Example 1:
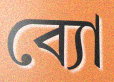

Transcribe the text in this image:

ব্যো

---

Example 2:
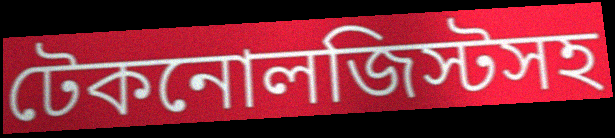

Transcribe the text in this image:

টেকনোলজিস্টসহ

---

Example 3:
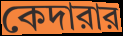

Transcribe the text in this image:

কেদারার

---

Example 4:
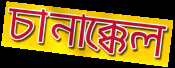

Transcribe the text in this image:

চানাক্কেল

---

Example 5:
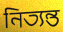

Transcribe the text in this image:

নিত্যন্ত